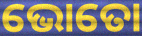
ଭୋତୋ